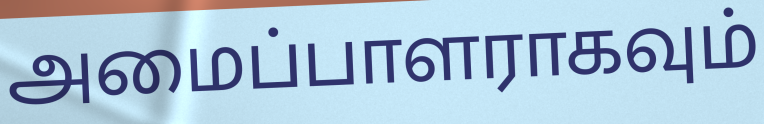
அமைப்பாளராகவும்